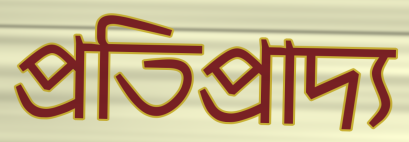
প্ৰতিপ্ৰাদ্য